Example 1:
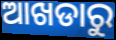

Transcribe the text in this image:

ଆଖଡାରୁ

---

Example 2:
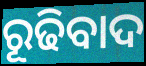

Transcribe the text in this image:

ରୂଢିବାଦ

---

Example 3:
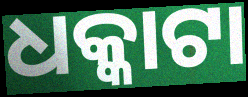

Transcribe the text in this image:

ଧକ୍କାଟା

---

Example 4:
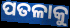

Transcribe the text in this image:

ପତଳାକୁ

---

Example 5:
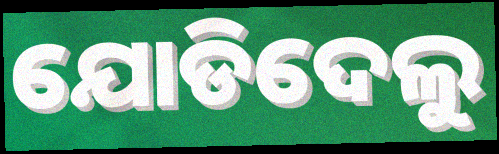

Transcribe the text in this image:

ଯୋଡିଦେଲୁ